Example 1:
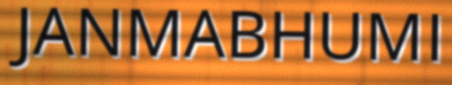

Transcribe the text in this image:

JANMABHUMI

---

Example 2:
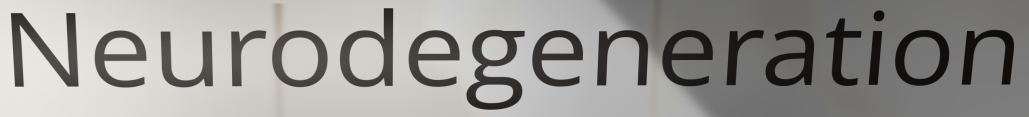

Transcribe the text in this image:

Neurodegeneration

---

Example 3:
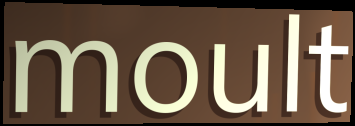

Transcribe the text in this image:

moult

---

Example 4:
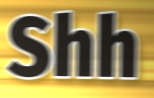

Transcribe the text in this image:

Shh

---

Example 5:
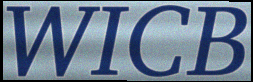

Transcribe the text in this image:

WICB